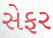
સેફર